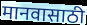
मानवासाठी